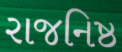
રાજનિષ્ઠ